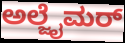
ಅಲ್ಜೈಮರ್